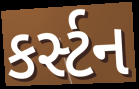
કર્સ્ટન